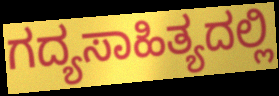
ಗದ್ಯಸಾಹಿತ್ಯದಲ್ಲಿ